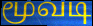
மூவடி